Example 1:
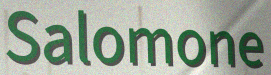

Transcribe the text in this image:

Salomone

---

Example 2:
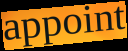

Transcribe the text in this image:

appoint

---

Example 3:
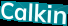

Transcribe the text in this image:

Calkin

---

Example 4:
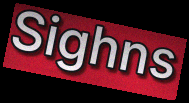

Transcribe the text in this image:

Sighns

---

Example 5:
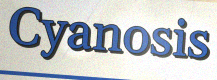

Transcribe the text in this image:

Cyanosis